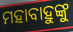
ମହାବାହୁଙ୍କୁ